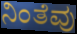
ನಿಂತೆವು